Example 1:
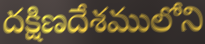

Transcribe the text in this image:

దక్షిణదేశములోని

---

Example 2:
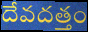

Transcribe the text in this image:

దేవదత్తం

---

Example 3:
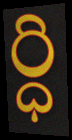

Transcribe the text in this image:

ర్ధి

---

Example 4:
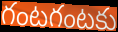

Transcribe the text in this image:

గంటగంటకు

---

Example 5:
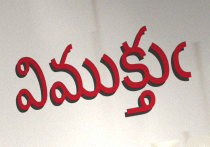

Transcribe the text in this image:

విముక్తుఁ